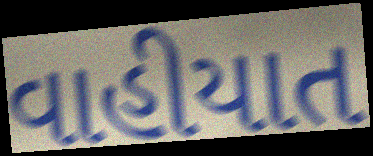
વાહીયાત